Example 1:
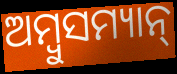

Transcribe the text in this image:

ଅମ୍ବୁସମ୍ୟାନ୍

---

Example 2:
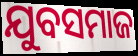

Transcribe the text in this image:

ଯୁବସମାଜ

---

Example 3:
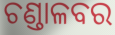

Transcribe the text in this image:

ଚଣ୍ଡାଳବର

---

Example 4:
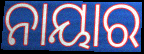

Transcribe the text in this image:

ନାୟାର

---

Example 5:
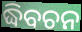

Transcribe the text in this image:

ଦ୍ଧିବଚନ